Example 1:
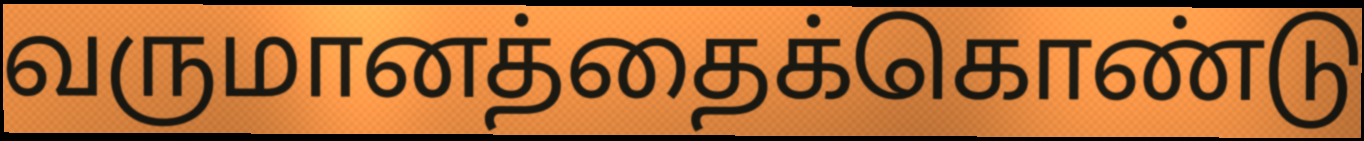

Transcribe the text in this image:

வருமானத்தைக்கொண்டு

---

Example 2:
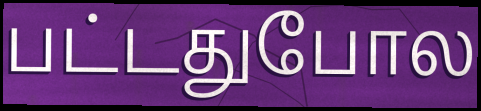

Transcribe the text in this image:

பட்டதுபோல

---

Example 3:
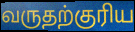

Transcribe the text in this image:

வருதற்குரிய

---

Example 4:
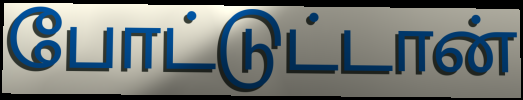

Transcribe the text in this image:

போட்டுட்டான்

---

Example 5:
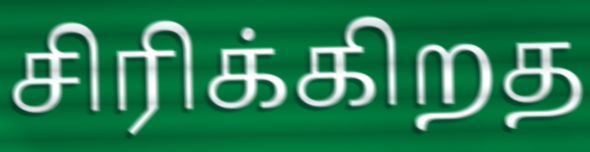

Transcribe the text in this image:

சிரிக்கிறத